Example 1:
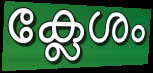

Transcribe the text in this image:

ക്ലേശം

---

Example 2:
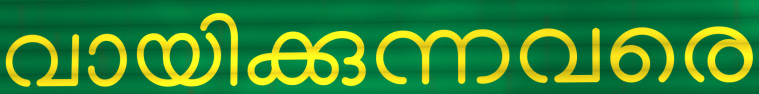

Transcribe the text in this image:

വായിക്കുന്നവരെ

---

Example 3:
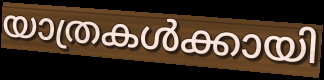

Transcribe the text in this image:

യാത്രകൾക്കായി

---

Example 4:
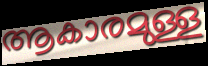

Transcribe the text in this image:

ആകാരമുള്ള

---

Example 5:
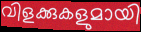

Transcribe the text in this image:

വിളക്കുകളുമായി